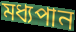
মধ্যপান